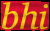
bhi